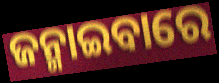
ଜନ୍ମାଇବାରେ